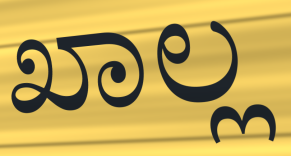
ಖಾಲ್ಲ